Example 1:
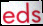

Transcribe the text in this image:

eds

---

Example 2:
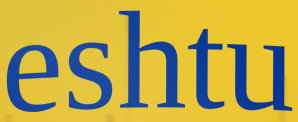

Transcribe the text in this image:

eshtu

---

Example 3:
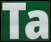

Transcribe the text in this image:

Ta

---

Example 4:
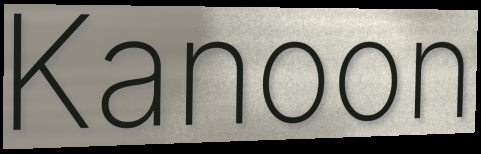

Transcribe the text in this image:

Kanoon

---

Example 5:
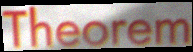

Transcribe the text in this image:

Theorem